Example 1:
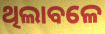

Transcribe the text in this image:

ଥିଲାବଳେ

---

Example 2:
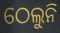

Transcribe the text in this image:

ଠେଲୁନି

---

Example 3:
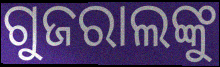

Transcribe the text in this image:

ଗୁଜରାଲଙ୍କୁ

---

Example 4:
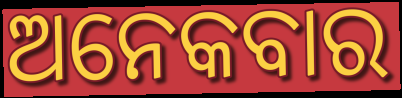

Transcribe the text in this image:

ଅନେକବାର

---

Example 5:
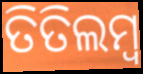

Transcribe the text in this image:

ତିତିଲମ୍ଵ